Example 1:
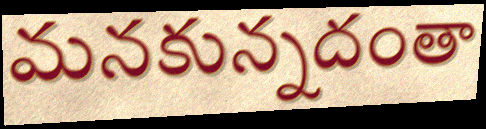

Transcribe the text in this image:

మనకున్నదంతా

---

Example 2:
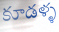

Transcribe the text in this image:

కూడళ్ళ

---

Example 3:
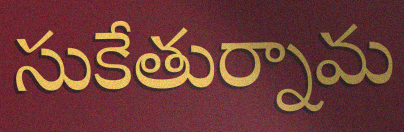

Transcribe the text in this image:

సుకేతుర్నామ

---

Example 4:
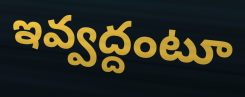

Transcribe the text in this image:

ఇవ్వద్దంటూ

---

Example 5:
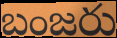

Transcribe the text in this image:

బంజరు